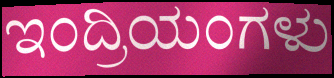
ಇಂದ್ರಿಯಂಗಳು